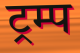
ट्रम्‍प